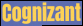
Cognizant